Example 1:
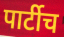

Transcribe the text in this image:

पार्टीच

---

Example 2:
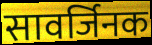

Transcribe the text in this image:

सावर्जिनक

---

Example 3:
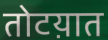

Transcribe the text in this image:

तोटय़ात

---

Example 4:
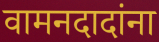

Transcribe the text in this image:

वामनदादांना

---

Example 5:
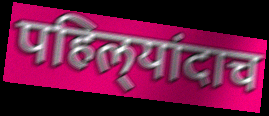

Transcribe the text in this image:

पहिल्यांदाच